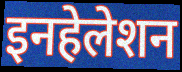
इनहेलेशन